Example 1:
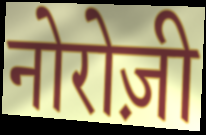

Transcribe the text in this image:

नोरोज़ी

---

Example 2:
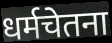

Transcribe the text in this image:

धर्मचेतना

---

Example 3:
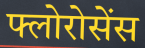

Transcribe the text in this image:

फ्लोरोसेंस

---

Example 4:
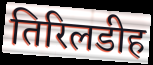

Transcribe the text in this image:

तिरिलडीह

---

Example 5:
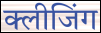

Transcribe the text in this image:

क्‍लीजिंग